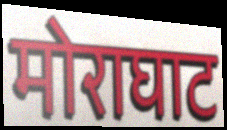
मोराघाट